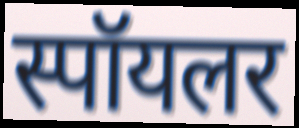
स्पॉयलर